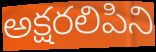
అక్షరలిపిని